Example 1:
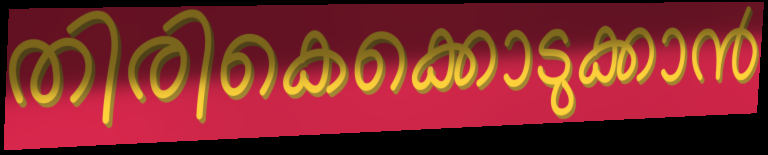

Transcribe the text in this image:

തിരികെക്കൊടുക്കാൻ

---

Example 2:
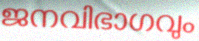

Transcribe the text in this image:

ജനവിഭാഗവും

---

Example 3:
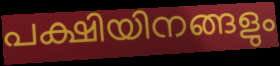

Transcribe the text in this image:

പക്ഷിയിനങ്ങളും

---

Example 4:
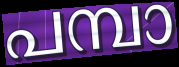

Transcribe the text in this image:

പമ്പാ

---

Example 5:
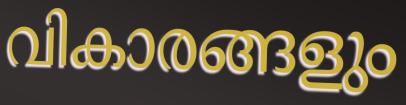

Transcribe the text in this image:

വികാരങ്ങളും